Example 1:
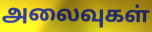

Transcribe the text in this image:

அலைவுகள்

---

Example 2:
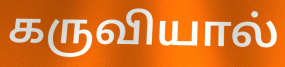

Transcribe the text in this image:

கருவியால்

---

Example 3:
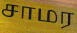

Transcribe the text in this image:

சாமர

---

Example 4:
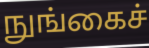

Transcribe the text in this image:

நுங்கைச்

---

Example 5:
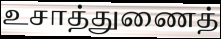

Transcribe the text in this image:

உசாத்துணைத்